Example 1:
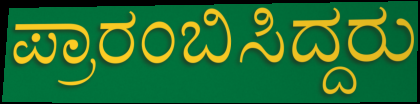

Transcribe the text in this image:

ಪ್ರಾರಂಬಿಸಿದ್ದರು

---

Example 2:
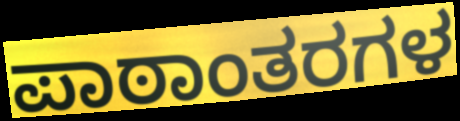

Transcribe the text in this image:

ಪಾಠಾಂತರಗಳ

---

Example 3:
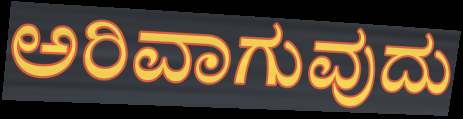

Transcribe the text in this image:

ಅರಿವಾಗುವುದು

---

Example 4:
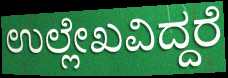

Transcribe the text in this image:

ಉಲ್ಲೇಖವಿದ್ದರೆ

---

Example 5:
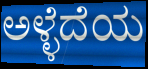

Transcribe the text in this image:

ಅಳ್ಳೆದೆಯ